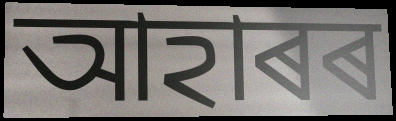
আহাৰৰ